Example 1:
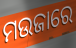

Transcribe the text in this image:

ମଉଜାରେ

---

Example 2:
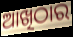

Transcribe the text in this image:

ଆଖିଠାର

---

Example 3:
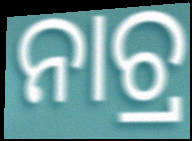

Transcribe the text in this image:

ନାଚ୍ର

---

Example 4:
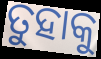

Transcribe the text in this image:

ତୁହାକୁ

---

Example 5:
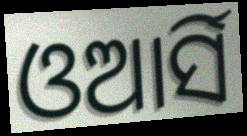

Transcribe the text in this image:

ଓଆର୍ସି